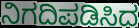
ನಿಗದಿಪಡಿಸಿದ